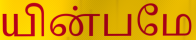
யின்பமே